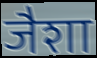
जैशा